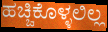
ಹಚ್ಚಿಕೊಳ್ಳಲಿಲ್ಲ